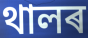
থালৰ